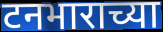
टनभाराच्या